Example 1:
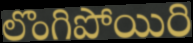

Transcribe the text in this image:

లొంగిపోయిరి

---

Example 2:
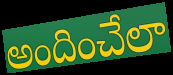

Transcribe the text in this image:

అందించేలా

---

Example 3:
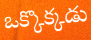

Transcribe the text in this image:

ఒక్కొక్కడు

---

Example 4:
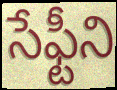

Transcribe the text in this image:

సేఫ్టీని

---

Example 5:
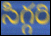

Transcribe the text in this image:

సిగ్గరి